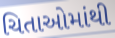
ચિતાઓમાંથી